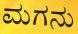
ಮಗನು